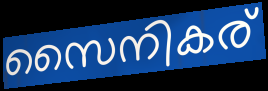
സൈനികര്